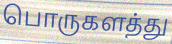
பொருகளத்து